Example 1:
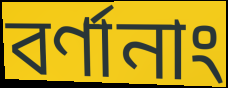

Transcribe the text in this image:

বর্ণানাং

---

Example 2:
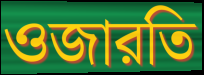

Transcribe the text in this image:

ওজারতি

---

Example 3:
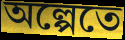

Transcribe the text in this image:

অল্পেতে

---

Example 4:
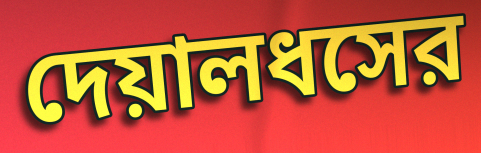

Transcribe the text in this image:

দেয়ালধসের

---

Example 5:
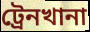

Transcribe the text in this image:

ট্রেনখানা